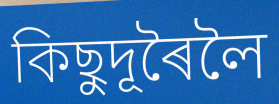
কিছুদূৰৈলৈ